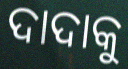
ଦାଦାକୁ